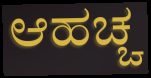
ಆಹಚ್ಚ